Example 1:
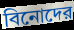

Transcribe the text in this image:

বিনোদের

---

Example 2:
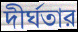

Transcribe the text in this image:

দীর্ঘতার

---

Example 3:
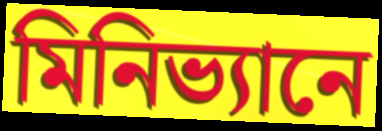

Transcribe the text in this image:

মিনিভ্যানে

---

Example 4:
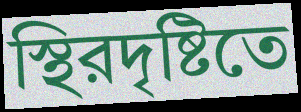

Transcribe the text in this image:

স্থিরদৃষ্টিতে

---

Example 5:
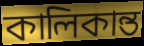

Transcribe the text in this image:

কালিকান্ত